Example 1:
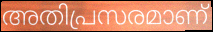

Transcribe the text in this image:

അതിപ്രസരമാണ്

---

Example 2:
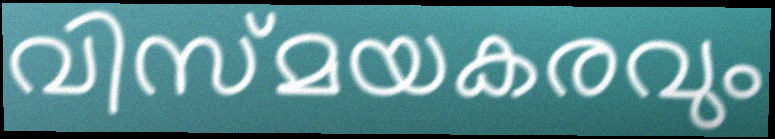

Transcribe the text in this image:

വിസ്മയകരവും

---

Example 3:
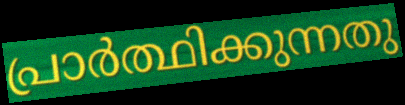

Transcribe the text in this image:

പ്രാർത്ഥിക്കുന്നതു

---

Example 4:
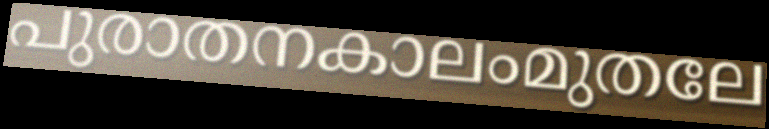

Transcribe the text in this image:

പുരാതനകാലംമുതലേ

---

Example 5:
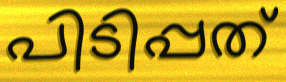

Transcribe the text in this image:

പിടിപ്പത്